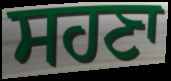
ਸਹਣਾ